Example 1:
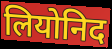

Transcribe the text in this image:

लियोनिद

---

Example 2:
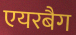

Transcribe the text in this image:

एयरबैग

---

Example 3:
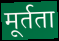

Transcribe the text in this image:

मूर्तता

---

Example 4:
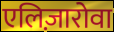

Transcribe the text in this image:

एलिज़ारोवा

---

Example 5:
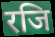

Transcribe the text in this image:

रजि